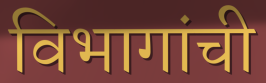
विभागांची